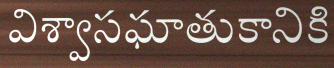
విశ్వాసఘాతుకానికి